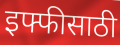
इफ्फीसाठी